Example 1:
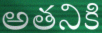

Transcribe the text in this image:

అతనికి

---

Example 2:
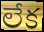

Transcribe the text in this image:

లేక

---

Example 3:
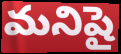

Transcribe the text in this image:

మనిషై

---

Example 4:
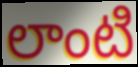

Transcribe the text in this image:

లాంటి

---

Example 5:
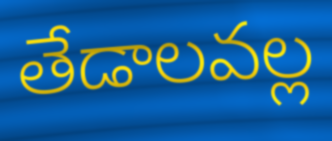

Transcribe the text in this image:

తేడాలవల్ల